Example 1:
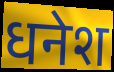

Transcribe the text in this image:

धनेश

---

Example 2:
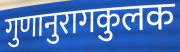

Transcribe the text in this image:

गुणानुरागकुलक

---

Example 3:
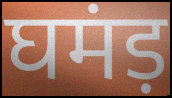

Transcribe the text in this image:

घमंड़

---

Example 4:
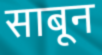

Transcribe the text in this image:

साबून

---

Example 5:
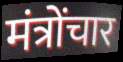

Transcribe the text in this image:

मंत्रोंचार